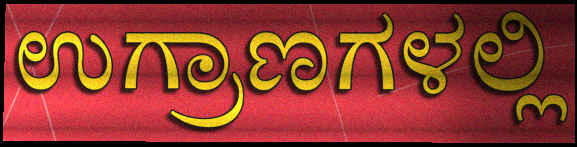
ಉಗ್ರಾಣಗಳಲ್ಲಿ